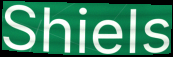
Shiels